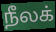
நீலக்